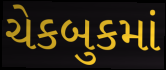
ચેકબુકમાં